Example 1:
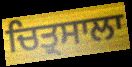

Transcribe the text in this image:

ਚਿਤ੍ਰਸਾਲਾ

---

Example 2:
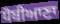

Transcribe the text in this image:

ਧੋਬੀਆਣਾ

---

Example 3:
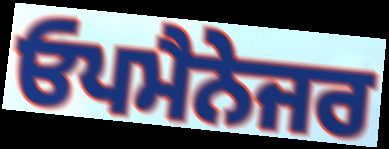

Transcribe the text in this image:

ਓਪਮੈਨੇਜਰ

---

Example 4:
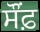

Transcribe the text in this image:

ਸੌਂਫ਼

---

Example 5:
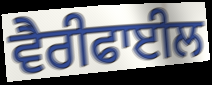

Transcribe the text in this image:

ਵੈਰੀਫਾਈਲ